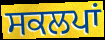
ਸਕਲਪਾਂ